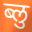
ब्लु